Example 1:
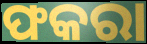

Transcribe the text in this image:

ଫକରା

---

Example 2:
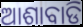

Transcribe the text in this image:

ଆଶାବାଡି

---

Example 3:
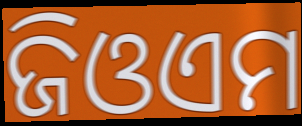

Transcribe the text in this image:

ଜିଓଏମ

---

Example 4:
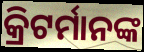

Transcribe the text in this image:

କ୍ରିଟର୍ମାନଙ୍କ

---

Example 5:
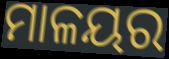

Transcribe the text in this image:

ମାଳୟର